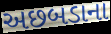
અછબડાના